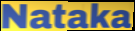
Nataka